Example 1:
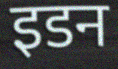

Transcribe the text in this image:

इडन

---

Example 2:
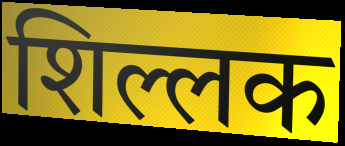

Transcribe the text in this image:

शिल्लक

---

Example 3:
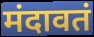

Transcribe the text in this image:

मंदावतं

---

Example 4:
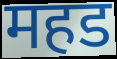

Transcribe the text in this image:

महड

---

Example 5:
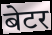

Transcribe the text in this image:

बेटर